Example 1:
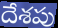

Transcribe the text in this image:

దేశపు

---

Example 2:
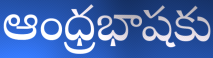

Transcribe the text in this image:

ఆంధ్రభాషకు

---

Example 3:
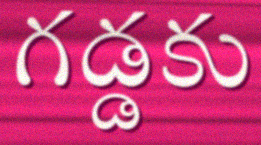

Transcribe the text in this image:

గడ్డకు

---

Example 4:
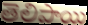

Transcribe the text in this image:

తెలిపాయి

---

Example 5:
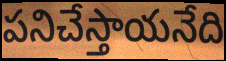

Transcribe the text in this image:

పనిచేస్తాయనేది